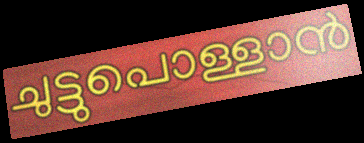
ചുട്ടുപൊള്ളാൻ